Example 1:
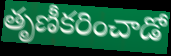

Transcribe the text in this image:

తృణీకరించాడో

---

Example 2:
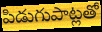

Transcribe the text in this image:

పిడుగుపాట్లతో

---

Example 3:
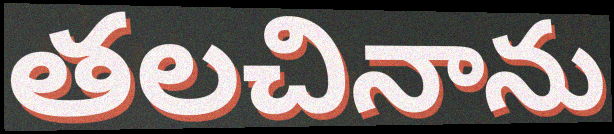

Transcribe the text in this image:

తలచినాను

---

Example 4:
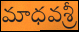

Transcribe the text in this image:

మాధవశ్రీ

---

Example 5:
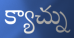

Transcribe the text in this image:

క్యాచ్ను